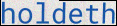
holdeth